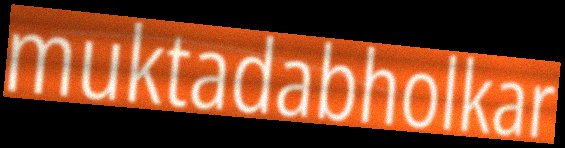
muktadabholkar